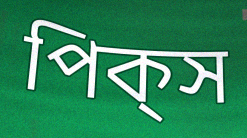
পিক্‌স